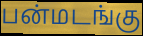
பன்மடங்கு